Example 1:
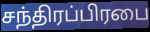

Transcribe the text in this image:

சந்திரப்பிரபை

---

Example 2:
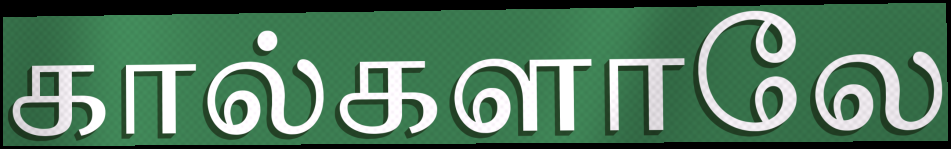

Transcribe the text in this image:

கால்களாலே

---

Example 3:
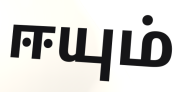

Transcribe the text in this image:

ஈயும்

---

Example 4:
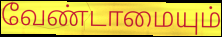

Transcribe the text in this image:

வேண்டாமையும்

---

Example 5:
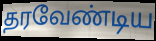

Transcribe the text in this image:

தரவேண்டிய